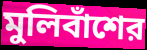
মুলিবাঁশের